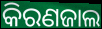
କିରଣଜାଲ